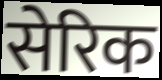
सेरिक